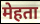
मेहता